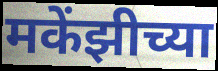
मकेंझीच्या